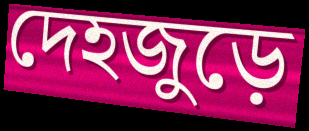
দেহজুড়ে